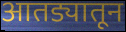
आतड्यातून